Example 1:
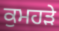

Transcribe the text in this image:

ਕੁਮਹੜੇ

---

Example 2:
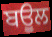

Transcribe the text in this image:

ਬਊਲ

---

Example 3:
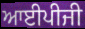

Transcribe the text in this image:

ਆਈਪੀਜੀ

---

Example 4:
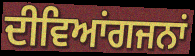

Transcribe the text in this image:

ਦੀਵਿਆਂਗਜਨਾਂ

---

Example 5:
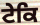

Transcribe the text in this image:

ਟੇਕਿ